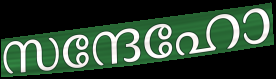
സന്ദേഹോ